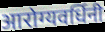
आरोग्यवर्धिनी